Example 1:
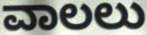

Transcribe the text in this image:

ವಾಲಲು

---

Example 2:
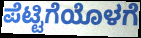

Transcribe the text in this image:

ಪೆಟ್ಟಿಗೆಯೊಳಗೆ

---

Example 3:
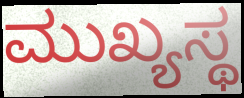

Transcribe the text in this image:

ಮುಖ್ಯಸ್ಥ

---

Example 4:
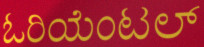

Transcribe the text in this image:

ಓರಿಯೆಂಟಲ್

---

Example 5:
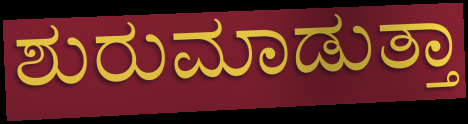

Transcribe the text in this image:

ಶುರುಮಾಡುತ್ತಾ